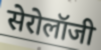
सेरोलॉजी